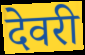
देवरी